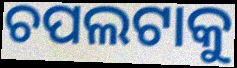
ଚପଲଟାକୁ